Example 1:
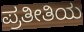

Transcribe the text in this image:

ಪ್ರತೀತಿಯ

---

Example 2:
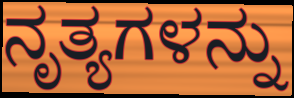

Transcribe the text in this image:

ನೃತ್ಯಗಳನ್ನು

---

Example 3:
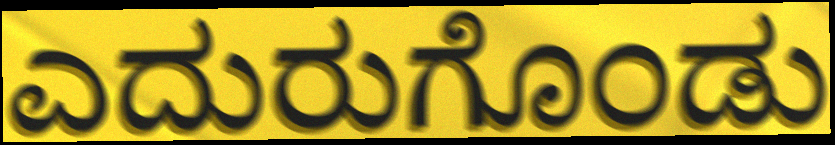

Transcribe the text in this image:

ಎದುರುಗೊಂಡು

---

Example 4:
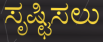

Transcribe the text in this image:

ಸೃಷ್ಟಿಸಲು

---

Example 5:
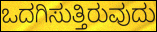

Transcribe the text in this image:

ಒದಗಿಸುತ್ತಿರುವುದು